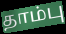
தாம்பு